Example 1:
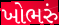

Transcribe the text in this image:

ખોભરું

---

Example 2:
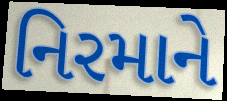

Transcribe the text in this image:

નિરમાને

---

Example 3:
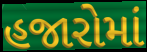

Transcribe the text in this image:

હજારોમાં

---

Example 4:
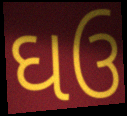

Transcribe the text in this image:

ઘઉ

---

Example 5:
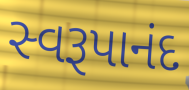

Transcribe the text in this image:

સ્વરૂપાનંદ